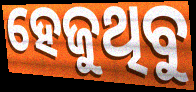
ହେଜୁଥିବୁ